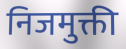
निजमुक्ती